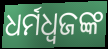
ଧର୍ମଧ୍ୱଜଙ୍କ